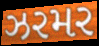
ઝરમર